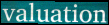
valuation